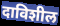
दाविशील